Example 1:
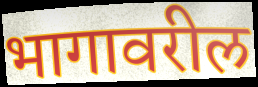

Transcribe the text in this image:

भागावरील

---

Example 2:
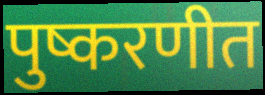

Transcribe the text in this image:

पुष्करणीत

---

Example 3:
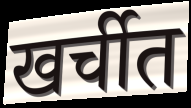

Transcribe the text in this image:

खर्चीत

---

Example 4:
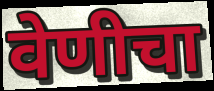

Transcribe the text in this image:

वेणीचा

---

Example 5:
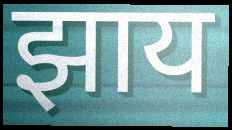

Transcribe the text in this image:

झाय